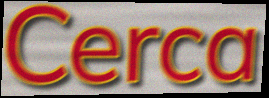
Cerca